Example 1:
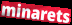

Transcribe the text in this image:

minarets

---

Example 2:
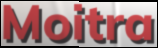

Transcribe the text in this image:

Moitra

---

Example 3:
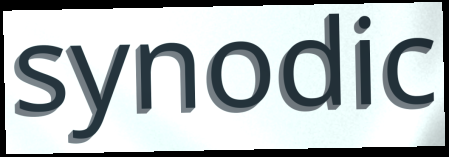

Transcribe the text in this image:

synodic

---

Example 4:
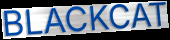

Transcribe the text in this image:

BLACKCAT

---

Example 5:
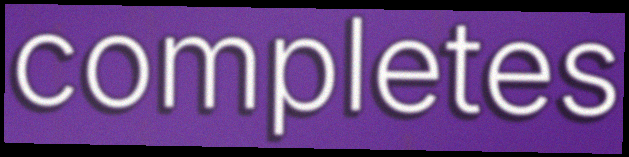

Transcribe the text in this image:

completes